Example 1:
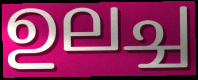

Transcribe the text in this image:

ഉലച്ച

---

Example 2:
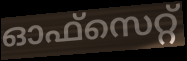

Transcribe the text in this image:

ഓഫ്സെറ്റ്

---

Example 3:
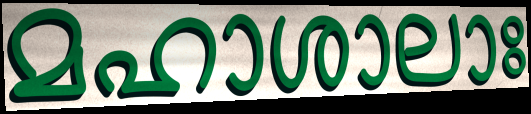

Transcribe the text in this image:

മഹാശാലാഃ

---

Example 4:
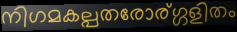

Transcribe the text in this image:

നിഗമകല്പതരോര്ഗ്ഗളിതം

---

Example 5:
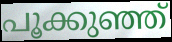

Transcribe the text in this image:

പൂക്കുഞ്ഞ്